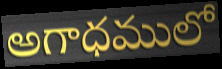
అగాధములో